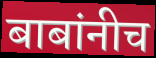
बाबांनीच